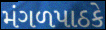
મંગળપાઠકે